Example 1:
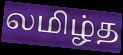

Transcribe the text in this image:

லமிழ்த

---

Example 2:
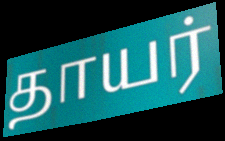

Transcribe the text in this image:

தாயர்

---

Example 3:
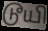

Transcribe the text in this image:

டூயி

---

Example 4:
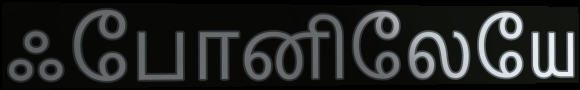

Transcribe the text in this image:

ஃபோனிலேயே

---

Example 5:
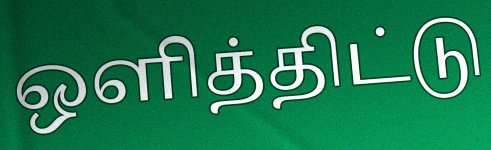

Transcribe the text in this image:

ஒளித்திட்டு